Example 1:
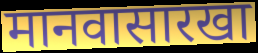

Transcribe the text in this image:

मानवासारखा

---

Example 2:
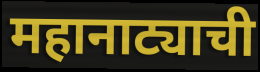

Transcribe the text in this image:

महानाट्याची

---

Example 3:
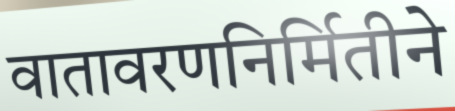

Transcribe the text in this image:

वातावरणनिर्मितीने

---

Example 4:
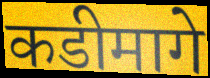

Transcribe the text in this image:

कडीमागे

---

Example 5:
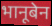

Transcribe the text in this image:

भानूबेन